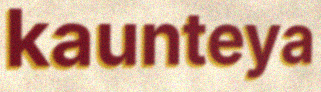
kaunteya